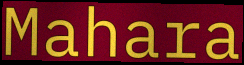
Mahara